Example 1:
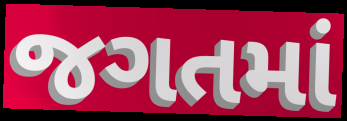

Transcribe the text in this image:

જગતમાં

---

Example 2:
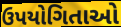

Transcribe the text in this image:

ઉપયોગિતાઓ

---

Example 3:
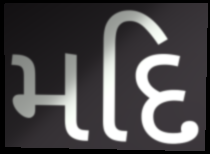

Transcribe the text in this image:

મદિ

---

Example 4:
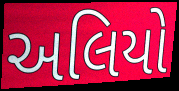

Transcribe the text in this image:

અલિયો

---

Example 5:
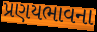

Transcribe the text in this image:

પ્રણયભાવના